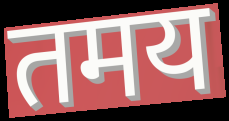
तमय